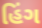
હિંગ